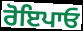
ਰੋਇਪਾਓ